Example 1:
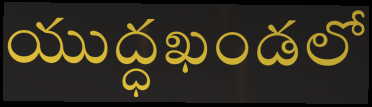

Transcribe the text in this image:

యుద్ధఖండలో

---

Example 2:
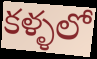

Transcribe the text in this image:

కళ్ళలో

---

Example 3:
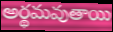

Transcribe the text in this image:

అర్థమవుతాయి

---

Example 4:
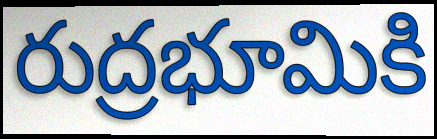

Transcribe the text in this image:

రుద్రభూమికి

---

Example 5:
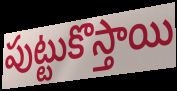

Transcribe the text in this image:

పుట్టుకొస్తాయి